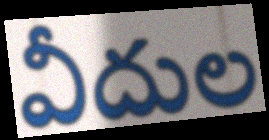
వీదుల